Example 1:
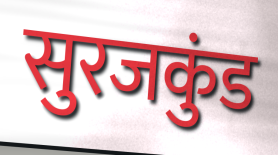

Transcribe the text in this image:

सुरजकुंड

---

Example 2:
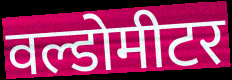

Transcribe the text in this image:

वल्डोमीटर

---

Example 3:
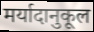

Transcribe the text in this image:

मर्यादानुकूल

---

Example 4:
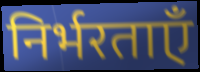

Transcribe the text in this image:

निर्भरताएँ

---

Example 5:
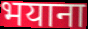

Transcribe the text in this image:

भयाना